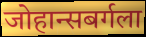
जोहान्सबर्गला